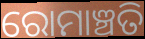
ରୋମାଞ୍ଚତି